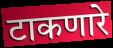
टाकणारे